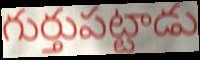
గుర్తుపట్టాడు